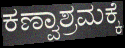
ಕಣ್ವಾಶ್ರಮಕ್ಕೆ